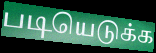
படியெடுக்க